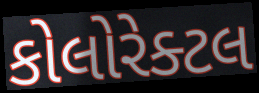
કોલોરેક્ટલ